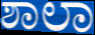
ಶಾಲಾ